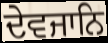
ਦੇਵਜਾਨਿ